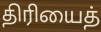
திரியைத்